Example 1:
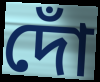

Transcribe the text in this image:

দোঁ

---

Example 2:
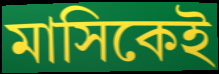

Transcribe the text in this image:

মাসিকেই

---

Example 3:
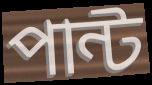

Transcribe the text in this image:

পান্ট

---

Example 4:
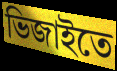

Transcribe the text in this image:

ভিজাইতে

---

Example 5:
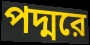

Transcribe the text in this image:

পদ্মরে